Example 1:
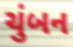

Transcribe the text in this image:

ચુંબન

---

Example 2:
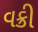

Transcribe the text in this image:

વક્રી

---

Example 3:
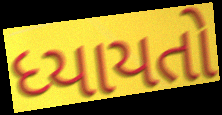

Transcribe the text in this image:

ધ્યાયતો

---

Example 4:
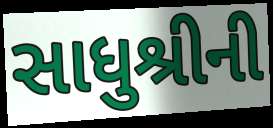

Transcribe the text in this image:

સાધુશ્રીની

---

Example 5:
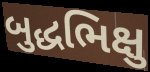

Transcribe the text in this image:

બુદ્ધભિક્ષુ